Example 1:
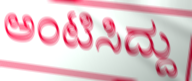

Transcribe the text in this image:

ಅಂಟಿಸಿದ್ದು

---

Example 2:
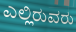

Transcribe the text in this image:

ಎಲ್ಲಿರುವರು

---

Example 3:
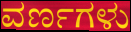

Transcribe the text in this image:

ವರ್ಣಗಳು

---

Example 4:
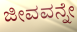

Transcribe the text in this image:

ಜೀವವನ್ನೇ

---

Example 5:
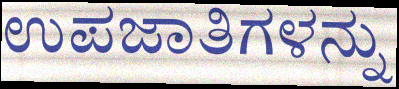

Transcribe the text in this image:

ಉಪಜಾತಿಗಳನ್ನು